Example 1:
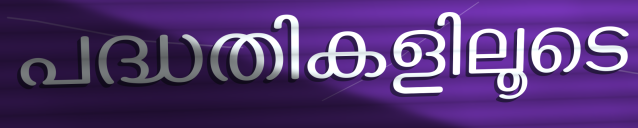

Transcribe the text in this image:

പദ്ധതികളിലൂടെ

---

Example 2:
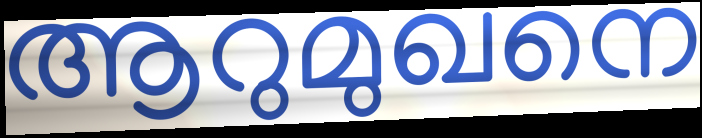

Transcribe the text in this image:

ആറുമുഖനെ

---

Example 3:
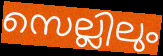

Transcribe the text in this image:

സെല്ലിലും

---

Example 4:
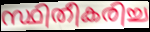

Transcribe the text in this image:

സ്ഥിതീകരിച്ച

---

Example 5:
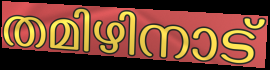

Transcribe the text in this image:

തമിഴിനാട്